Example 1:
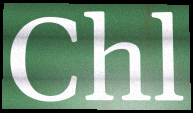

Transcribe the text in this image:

Chl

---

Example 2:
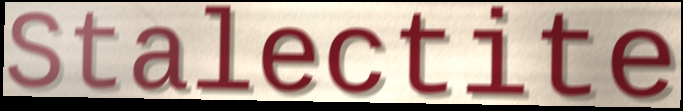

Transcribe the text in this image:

Stalectite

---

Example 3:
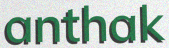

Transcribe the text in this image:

anthak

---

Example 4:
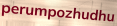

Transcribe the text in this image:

perumpozhudhu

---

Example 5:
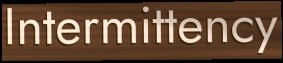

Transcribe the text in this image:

Intermittency